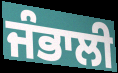
ਜੰਭਾਲੀ